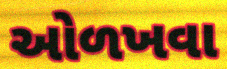
ઓળખવા